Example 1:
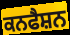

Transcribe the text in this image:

ਕਨਫੈਸ਼ਨ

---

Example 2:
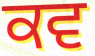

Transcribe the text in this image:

ਕਵ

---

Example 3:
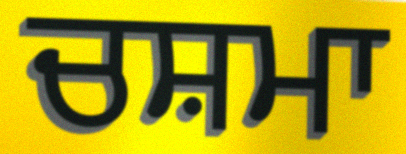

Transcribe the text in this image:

ਚਸ਼ਮਾ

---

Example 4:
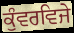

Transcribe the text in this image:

ਕੁੰਵਰਵਿਜੇ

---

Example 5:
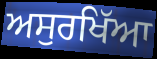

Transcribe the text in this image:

ਅਸੁਰਖਿੱਆ